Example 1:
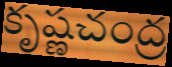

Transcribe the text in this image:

కృష్ణచంద్ర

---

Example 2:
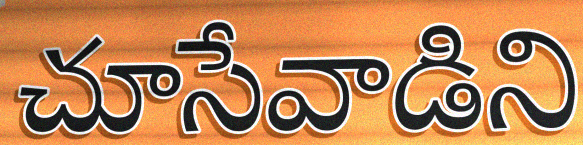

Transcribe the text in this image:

చూసేవాడిని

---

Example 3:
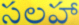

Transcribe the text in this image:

సలహా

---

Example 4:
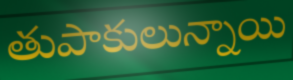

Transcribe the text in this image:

తుపాకులున్నాయి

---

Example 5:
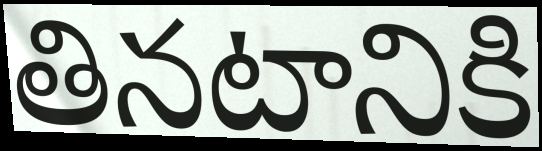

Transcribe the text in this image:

తినటానికి